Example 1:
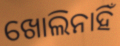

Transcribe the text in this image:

ଖୋଲିନାହିଁ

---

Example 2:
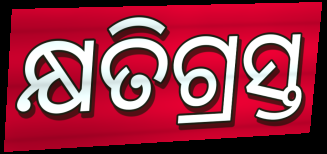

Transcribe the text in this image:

କ୍ଷତିଗ୍ରସ୍ତ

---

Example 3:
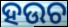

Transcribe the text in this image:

ହଉଚ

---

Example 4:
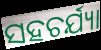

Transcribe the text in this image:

ସହଚର୍ଯ୍ୟା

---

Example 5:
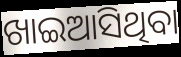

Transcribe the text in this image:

ଖାଇଆସିଥିବା